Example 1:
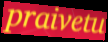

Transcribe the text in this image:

praivetu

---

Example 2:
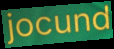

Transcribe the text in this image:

jocund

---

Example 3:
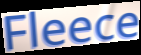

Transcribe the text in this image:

Fleece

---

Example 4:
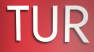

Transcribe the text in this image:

TUR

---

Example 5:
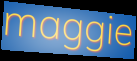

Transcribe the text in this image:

maggie